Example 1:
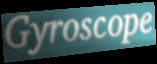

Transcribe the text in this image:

Gyroscope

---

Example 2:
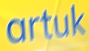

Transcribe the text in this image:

artuk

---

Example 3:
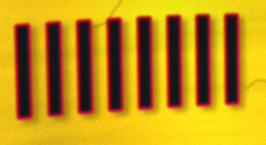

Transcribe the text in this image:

IIIIIIII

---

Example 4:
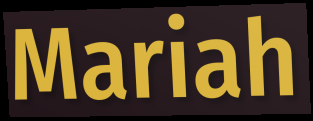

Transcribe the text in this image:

Mariah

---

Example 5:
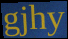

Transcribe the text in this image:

gjhy